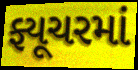
ફ્યૂચરમાં